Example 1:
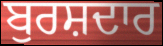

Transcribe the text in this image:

ਬੁਰਸ਼ਦਾਰ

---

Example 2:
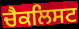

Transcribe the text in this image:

ਚੈਕਲਿਸਟ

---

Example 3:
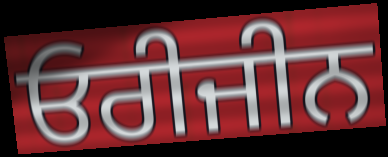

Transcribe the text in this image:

ਓਰੀਜੀਨ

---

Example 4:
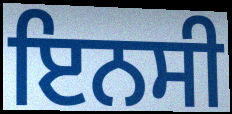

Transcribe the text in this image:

ਇਨਸੀ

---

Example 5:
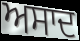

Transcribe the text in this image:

ਅਸਾਦ